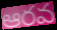
ఆరవ